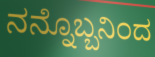
ನನ್ನೊಬ್ಬನಿಂದ